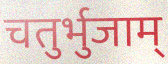
चतुर्भुजाम्